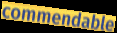
commendable